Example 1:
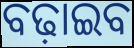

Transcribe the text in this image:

ବଢ଼ାଇବ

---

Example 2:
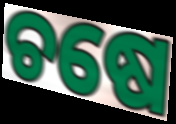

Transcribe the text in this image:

ଚଷେ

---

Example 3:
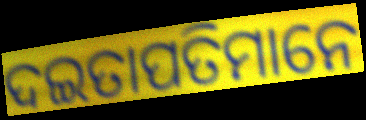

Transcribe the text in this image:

ଦଇତାପତିମାନେ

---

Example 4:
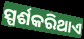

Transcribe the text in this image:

ସ୍ପର୍ଶକରିଥାଏ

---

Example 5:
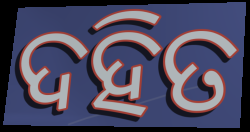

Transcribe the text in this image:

ଦହିତ